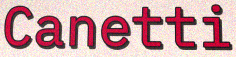
Canetti